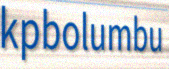
kpbolumbu